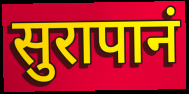
सुरापानं